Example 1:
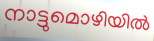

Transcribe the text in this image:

നാട്ടുമൊഴിയിൽ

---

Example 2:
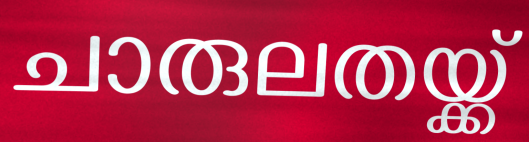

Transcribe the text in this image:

ചാരുലതയ്ക്ക്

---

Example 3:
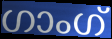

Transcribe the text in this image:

ഗാംഗ്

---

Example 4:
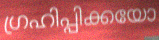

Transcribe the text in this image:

ഗ്രഹിപ്പിക്കയോ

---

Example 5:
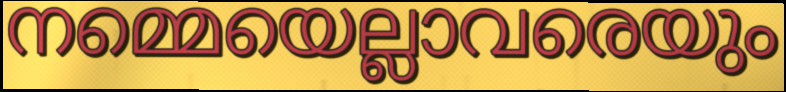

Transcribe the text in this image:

നമ്മെയെല്ലാവരെയും